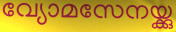
വ്യോമസേനയ്ക്കു